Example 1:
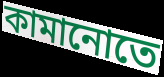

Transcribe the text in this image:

কামানোতে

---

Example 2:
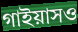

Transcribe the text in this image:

গাইয়াসও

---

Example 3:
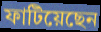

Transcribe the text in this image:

ফাটিয়েছেন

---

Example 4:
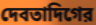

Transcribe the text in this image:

দেবতাদিগের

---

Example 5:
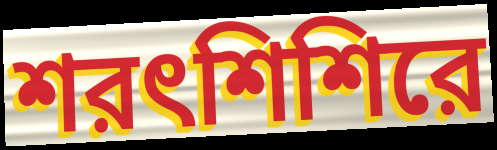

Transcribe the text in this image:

শরৎশিশিরে